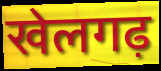
खेलगढ़